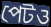
পেটও